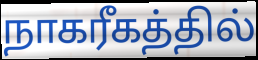
நாகரீகத்தில்